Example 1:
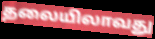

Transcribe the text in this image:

தலையிலாவது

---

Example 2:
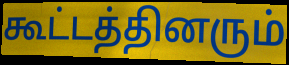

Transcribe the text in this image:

கூட்டத்தினரும்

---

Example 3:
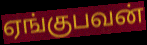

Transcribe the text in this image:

ஏங்குபவன்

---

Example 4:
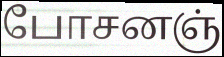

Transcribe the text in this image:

போசனஞ்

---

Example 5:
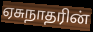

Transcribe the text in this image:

ஏசுநாதரின்